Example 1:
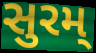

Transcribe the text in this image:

સુરમ્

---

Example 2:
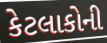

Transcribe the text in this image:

કેટલાકોની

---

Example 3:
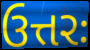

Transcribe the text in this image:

ઉત્તરઃ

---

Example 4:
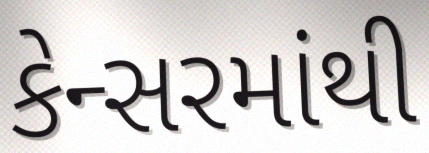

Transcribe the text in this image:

કેન્સરમાંથી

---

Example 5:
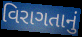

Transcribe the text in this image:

વિરાગતાનું